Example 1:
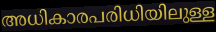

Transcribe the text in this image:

അധികാരപരിധിയിലുള്ള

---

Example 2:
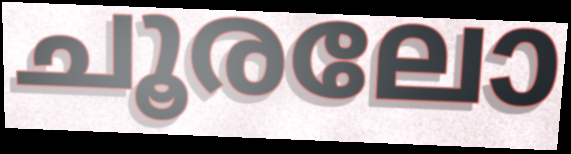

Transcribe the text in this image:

ചൂരലോ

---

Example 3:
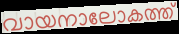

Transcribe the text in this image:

വായനാലോകത്ത്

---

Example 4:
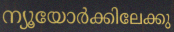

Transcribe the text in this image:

ന്യൂയോർക്കിലേക്കു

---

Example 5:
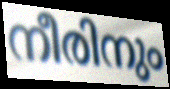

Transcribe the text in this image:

നീരിനും